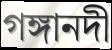
গঙ্গানদী